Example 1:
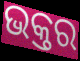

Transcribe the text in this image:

ଭକ୍ତର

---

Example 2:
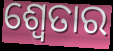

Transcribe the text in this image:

ଶ୍ଵେତାର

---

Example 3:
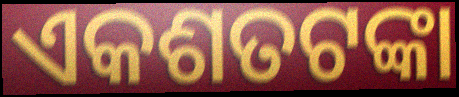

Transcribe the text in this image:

ଏକଶତଟଙ୍କା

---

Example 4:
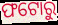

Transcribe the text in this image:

ଫଟୋରୁ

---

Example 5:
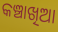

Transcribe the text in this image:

କଞ୍ଚାଖିଆ